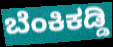
ಬೆಂಕಿಕಡ್ಡಿ